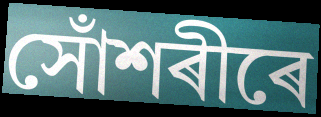
সোঁশৰীৰে